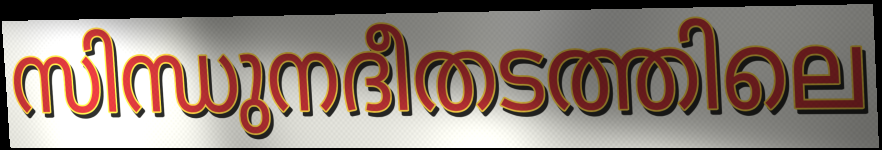
സിന്ധുനദീതടത്തിലെ